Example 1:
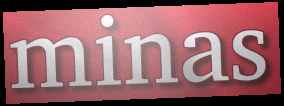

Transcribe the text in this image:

minas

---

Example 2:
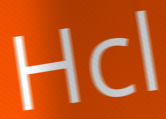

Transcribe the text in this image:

Hcl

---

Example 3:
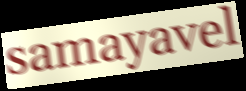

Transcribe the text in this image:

samayavel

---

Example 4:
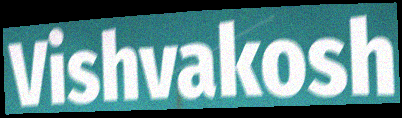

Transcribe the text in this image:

Vishvakosh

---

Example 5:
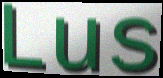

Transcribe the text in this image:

Lus